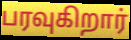
பரவுகிறார்